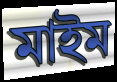
মাইম